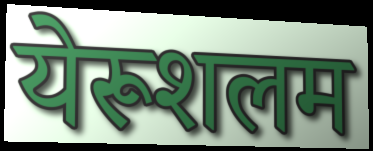
येरूशलम